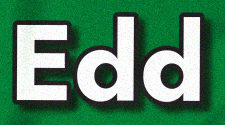
Edd